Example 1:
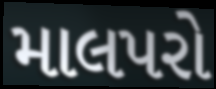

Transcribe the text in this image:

માલપરો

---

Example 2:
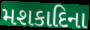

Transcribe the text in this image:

મશકાદિના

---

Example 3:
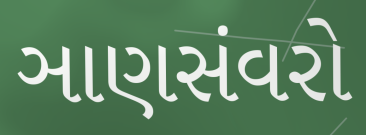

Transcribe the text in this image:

ઞાણસંવરો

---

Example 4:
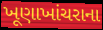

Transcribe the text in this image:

ખૂણાખાંચરાના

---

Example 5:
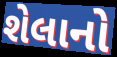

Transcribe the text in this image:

શેલાનો